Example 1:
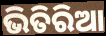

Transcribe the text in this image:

ଭିତିରିଆ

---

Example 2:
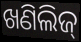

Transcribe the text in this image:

ଖଣିଲିଜ୍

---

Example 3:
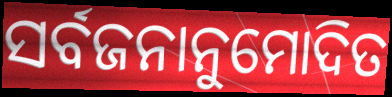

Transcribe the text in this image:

ସର୍ବଜନାନୁମୋଦିତ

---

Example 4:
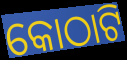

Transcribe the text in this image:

କୋଠାଟି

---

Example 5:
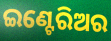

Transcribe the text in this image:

ଇଣ୍ଟେରିଅର